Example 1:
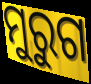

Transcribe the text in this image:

ମୁରୁଗ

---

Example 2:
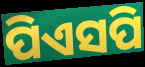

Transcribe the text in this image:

ପିଏସପି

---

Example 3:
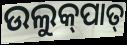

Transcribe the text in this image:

ଉଲୁକ୍‌ପାତ୍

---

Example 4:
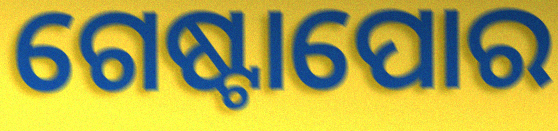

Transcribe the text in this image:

ଗେଷ୍ଟାପୋର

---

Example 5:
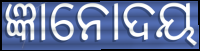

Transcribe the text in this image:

ଜ୍ଞାନୋଦୟ